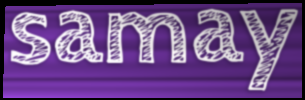
samay